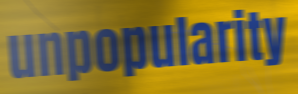
unpopularity